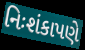
નિઃશંકાપણે